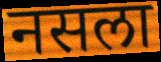
नसला